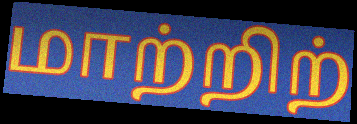
மாற்றிற்